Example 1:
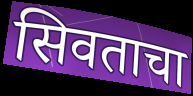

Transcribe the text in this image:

सिवताचा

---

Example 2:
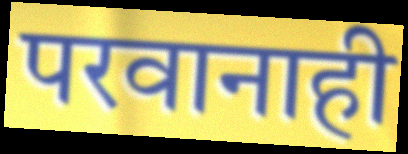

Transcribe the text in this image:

परवानाही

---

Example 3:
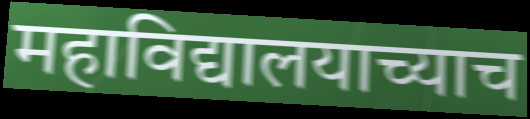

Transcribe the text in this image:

महाविद्यालयाच्याच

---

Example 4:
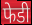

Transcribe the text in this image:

फेडी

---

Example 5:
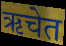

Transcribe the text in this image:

ॠचेत